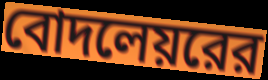
বোদলেয়রের